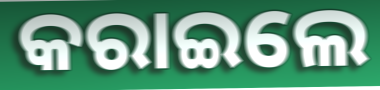
କରାଇଲେ